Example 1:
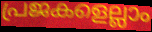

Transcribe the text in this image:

പ്രജകളെല്ലാം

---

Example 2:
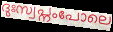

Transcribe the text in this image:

ദുഃസ്വപ്നംപോലെ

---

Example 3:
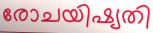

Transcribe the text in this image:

രോചയിഷ്യതി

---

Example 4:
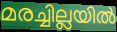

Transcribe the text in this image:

മരച്ചില്ലയിൽ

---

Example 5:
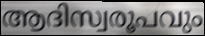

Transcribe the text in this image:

ആദിസ്വരൂപവും